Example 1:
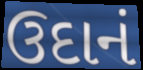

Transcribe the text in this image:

ઉદાનં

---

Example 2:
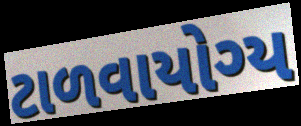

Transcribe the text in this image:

ટાળવાયોગ્ય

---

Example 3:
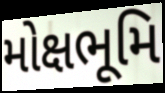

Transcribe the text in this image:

મોક્ષભૂમિ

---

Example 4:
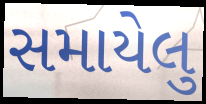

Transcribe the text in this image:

સમાયેલુ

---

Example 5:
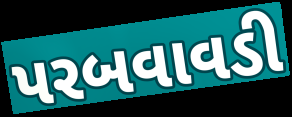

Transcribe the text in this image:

પરબવાવડી